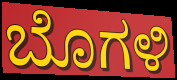
ಬೊಗಳಿ